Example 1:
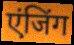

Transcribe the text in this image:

एंजिंग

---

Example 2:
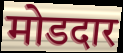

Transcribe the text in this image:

मोडदार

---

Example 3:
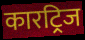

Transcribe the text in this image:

कारट्रिज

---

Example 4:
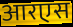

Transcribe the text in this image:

आरएस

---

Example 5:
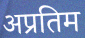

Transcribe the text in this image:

अप्रतिम